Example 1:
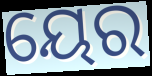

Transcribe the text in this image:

ୟେର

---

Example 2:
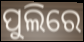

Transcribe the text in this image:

ପୁଲିରେ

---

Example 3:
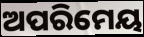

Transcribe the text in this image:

ଅପରିମେୟ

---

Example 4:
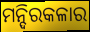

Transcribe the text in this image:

ମନ୍ଦିରକଳାର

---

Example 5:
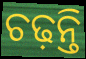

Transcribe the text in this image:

ଚଢ଼ନ୍ତି